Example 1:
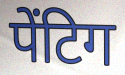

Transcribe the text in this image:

पेंटिग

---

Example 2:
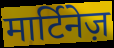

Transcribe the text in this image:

मार्टिनेज़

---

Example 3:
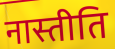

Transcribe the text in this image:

नास्तीति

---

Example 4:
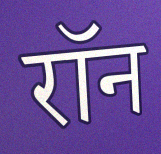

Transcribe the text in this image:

रॉन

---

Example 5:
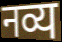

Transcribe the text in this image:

नव्य